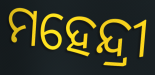
ମହେନ୍ଦ୍ରୀ